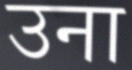
उना